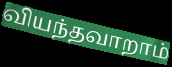
வியந்தவாறாம்